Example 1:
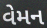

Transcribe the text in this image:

વેમન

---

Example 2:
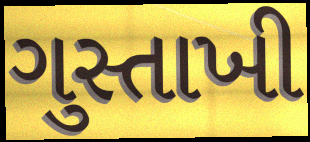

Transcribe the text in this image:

ગુસ્તાખી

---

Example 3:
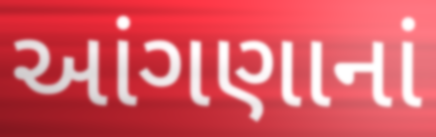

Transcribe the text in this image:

આંગણાનાં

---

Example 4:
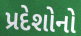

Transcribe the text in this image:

પ્રદેશોનો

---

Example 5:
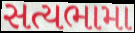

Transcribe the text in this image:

સત્યભામા